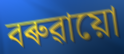
বৰুৱায়ো